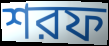
শরফ